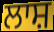
ਲਾਸ਼